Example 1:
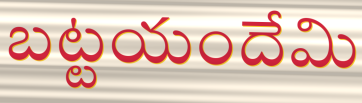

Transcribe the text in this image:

బట్టయందేమి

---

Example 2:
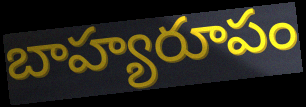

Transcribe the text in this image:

బాహ్యరూపం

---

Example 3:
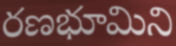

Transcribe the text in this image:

రణభూమిని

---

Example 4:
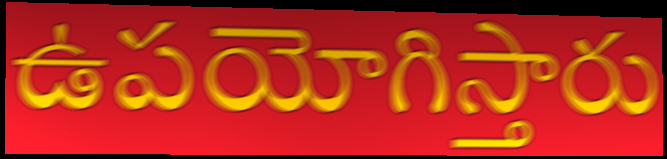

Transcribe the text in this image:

ఉపయోగిస్తారు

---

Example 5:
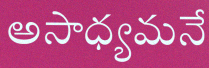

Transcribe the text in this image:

అసాధ్యమనే